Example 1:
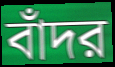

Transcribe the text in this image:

বাঁদর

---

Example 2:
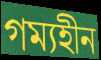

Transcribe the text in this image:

গম্যহীন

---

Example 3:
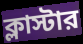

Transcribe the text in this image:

ক্লাস্টার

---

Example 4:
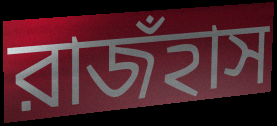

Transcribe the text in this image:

রাজঁহাস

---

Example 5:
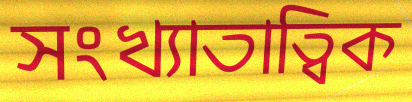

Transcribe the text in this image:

সংখ্যাতাত্বিক